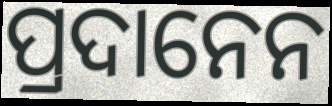
ପ୍ରଦାନେନ